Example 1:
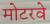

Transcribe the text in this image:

मोटरवे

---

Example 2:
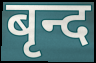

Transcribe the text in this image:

बृन्द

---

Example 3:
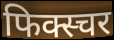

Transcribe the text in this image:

फिक्स्चर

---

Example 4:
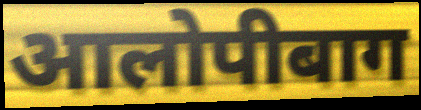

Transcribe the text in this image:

आलोपीबाग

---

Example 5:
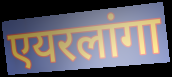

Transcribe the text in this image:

एयरलांगा